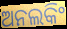
ଅନଲକିଂ